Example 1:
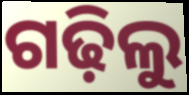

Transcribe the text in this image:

ଗଢ଼ିଲୁ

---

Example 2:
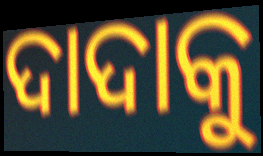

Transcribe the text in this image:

ଦାଦାକୁ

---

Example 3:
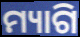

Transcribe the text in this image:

ମ୍ୟାଗି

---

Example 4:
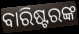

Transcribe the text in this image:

ବାରିଷ୍ଟରଙ୍କ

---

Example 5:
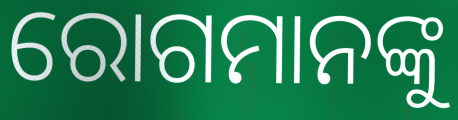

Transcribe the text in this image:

ରୋଗମାନଙ୍କୁ